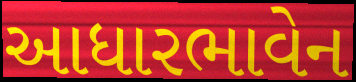
આધારભાવેન